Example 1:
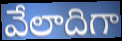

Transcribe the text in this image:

వేలాదిగా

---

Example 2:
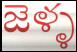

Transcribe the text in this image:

జెళ్ళ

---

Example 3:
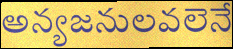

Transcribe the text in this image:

అన్యజనులవలెనే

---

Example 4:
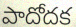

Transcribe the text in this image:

పాదోదక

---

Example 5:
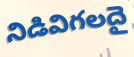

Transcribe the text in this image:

నిడివిగలదై